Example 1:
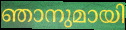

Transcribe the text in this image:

ഞാനുമായി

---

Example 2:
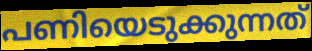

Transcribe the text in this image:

പണിയെടുക്കുന്നത്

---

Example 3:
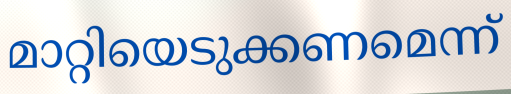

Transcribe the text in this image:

മാറ്റിയെടുക്കണമെന്ന്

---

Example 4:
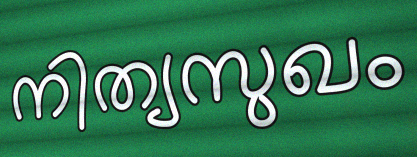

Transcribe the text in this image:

നിത്യസുഖം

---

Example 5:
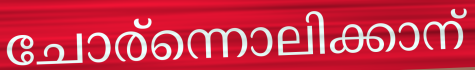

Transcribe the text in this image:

ചോര്ന്നൊലിക്കാന്